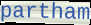
partham